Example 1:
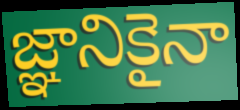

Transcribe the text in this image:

జ్ఞానికైనా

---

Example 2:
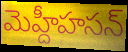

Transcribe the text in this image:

మెహ్దీహసన్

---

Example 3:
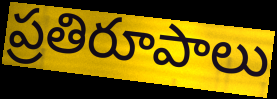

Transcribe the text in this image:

ప్రతిరూపాలు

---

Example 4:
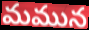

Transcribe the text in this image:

మమున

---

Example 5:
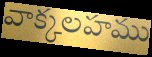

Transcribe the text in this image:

వాక్కలహము